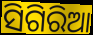
ସିଗିରିଆ